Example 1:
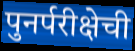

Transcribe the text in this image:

पुनर्परीक्षेची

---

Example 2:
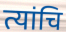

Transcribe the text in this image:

त्यांचि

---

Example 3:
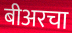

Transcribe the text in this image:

बीअरचा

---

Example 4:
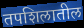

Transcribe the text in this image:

तपशिलातील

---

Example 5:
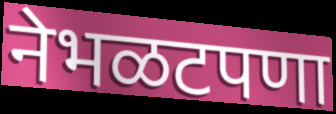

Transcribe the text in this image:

नेभळटपणा